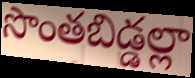
సొంతబిడ్డల్లా